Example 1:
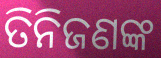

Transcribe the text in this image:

ତିନିଜଣଙ୍କ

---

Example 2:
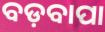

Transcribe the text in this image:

ବଡ଼ବାପା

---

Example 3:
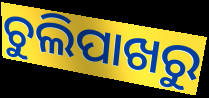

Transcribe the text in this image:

ଚୁଲିପାଖରୁ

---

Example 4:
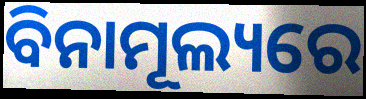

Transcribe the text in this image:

ବିନାମୂଲ୍ୟରେ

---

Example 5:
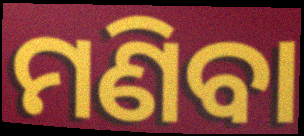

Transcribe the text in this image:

ମଣିବା